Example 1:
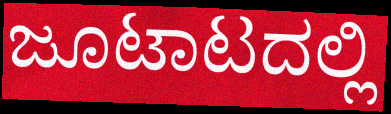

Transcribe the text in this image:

ಜೂಟಾಟದಲ್ಲಿ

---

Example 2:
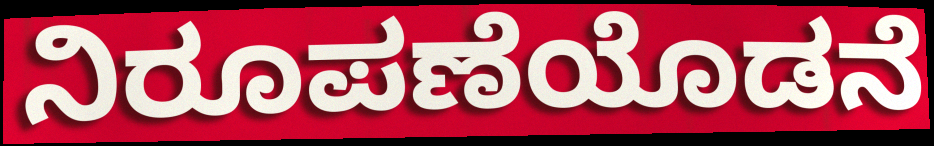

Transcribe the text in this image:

ನಿರೂಪಣೆಯೊಡನೆ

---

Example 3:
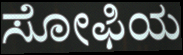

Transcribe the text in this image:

ಸೋಫಿಯ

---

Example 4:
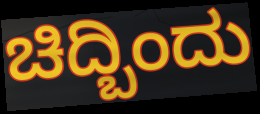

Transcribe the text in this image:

ಚಿದ್ಬಿಂದು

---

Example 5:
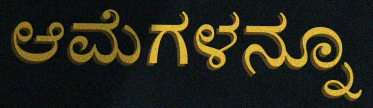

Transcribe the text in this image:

ಆಮೆಗಳನ್ನೂ